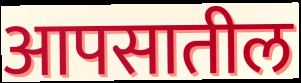
आपसातील